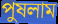
পুষলাম